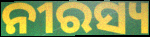
ନୀରସ୍ୟ